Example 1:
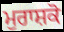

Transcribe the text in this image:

ਮੁਰਾਸ਼ਕੋ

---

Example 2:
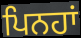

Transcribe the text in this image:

ਪਿਨਹਾਂ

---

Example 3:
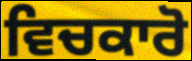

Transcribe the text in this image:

ਵਿਚਕਾਰੋ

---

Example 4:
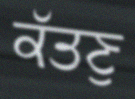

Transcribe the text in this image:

ਕੱਤਣੁ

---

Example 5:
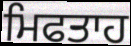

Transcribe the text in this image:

ਮਿਫਤਾਹ